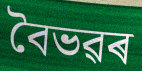
বৈভৱৰ